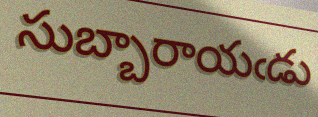
సుబ్బారాయఁడు